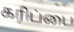
கரிப்பை